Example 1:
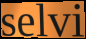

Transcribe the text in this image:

selvi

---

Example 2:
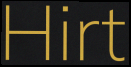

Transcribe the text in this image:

Hirt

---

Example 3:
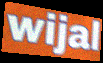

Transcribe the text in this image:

wijal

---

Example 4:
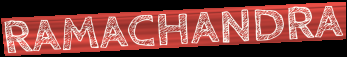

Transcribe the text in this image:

RAMACHANDRA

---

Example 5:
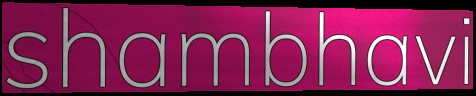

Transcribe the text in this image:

shambhavi